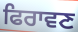
ਫਿਰਾਵਣ